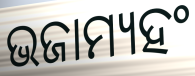
ଭଜାମ୍ୟହଂ